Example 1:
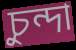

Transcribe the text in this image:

চুন্দা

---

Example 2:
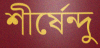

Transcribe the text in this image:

শীর্ষেন্দু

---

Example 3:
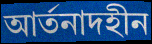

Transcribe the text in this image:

আর্তনাদহীন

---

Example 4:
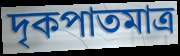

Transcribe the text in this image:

দৃকপাতমাত্র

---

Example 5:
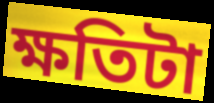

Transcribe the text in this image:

ক্ষতিটা